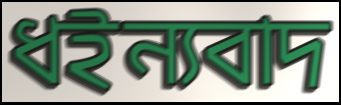
ধইন্যবাদ